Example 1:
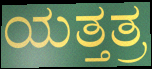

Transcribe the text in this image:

ಯತ್ತತ್ರ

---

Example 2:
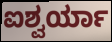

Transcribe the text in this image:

ಐಶ್ವರ್ಯಾ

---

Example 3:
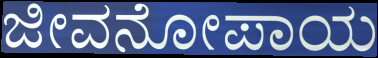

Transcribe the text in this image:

ಜೀವನೋಪಾಯ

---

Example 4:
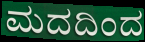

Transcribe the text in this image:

ಮದದಿಂದ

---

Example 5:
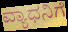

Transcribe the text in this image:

ವ್ಯಾಧನಿಗೆ